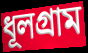
ধূলগ্রাম